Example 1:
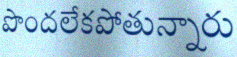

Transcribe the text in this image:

పొందలేకపోతున్నారు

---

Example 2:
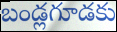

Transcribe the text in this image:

బండ్లగూడకు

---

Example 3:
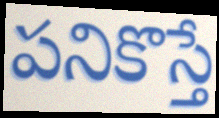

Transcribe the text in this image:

పనికొస్తే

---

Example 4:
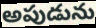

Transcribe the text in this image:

అపుడును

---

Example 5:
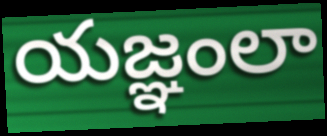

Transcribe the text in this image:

యజ్ఞంలా